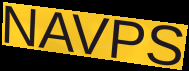
NAVPS